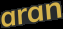
aran